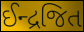
ઈન્દ્રજિત